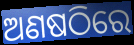
ଅଣଷଠିରେ